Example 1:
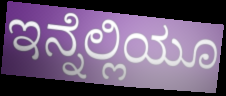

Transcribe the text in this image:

ಇನ್ನೆಲ್ಲಿಯೂ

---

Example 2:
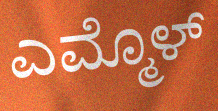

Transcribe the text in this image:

ಎಮ್ಮೊಳ್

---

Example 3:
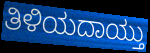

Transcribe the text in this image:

ತಿಳಿಯದಾಯ್ತು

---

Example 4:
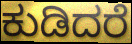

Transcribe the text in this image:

ಕುಡಿದರೆ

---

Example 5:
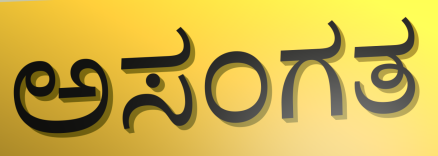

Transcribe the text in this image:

ಅಸಂಗತ